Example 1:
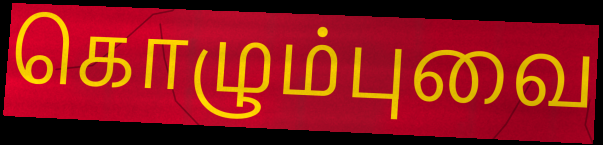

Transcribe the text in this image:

கொழும்புவை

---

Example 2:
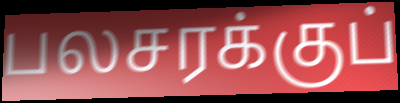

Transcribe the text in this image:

பலசரக்குப்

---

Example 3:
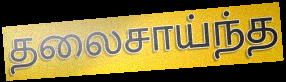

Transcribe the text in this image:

தலைசாய்ந்த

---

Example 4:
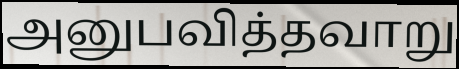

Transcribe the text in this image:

அனுபவித்தவாறு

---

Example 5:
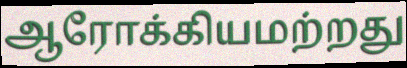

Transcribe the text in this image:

ஆரோக்கியமற்றது